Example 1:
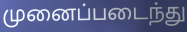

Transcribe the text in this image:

முனைப்படைந்து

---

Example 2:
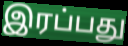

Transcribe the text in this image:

இரப்பது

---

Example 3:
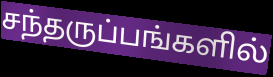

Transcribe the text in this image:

சந்தருப்பங்களில்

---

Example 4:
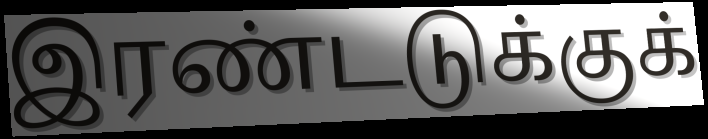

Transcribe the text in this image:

இரண்டடுக்குக்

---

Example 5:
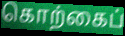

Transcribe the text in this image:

கொற்கைப்